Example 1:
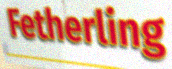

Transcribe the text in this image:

Fetherling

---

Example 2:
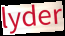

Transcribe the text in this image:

lyder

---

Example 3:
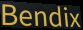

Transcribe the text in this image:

Bendix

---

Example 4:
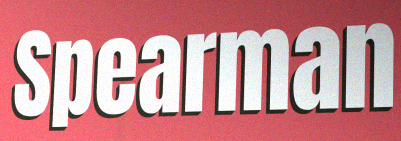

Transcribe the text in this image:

Spearman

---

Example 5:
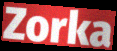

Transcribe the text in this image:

Zorka